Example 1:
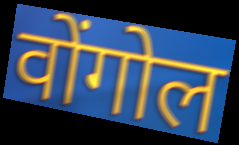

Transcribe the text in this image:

वोंगोल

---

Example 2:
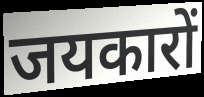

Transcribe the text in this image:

जयकारों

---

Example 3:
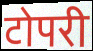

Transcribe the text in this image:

टोपरी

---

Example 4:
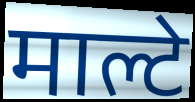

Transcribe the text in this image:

माल्टे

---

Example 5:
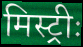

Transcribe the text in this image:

मिस्ट्रीः